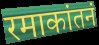
रमाकांतनं